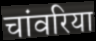
चांवरिया